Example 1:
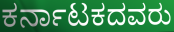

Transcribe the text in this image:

ಕರ್ನಾಟಕದವರು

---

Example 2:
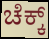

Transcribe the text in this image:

ಚೆಕ್ಕ್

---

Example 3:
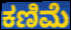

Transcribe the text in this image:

ಕಣಿಮೆ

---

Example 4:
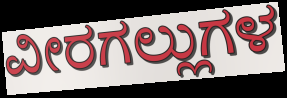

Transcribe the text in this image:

ವೀರಗಲ್ಲುಗಳ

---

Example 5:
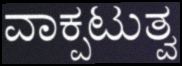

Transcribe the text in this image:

ವಾಕ್ಪಟುತ್ವ